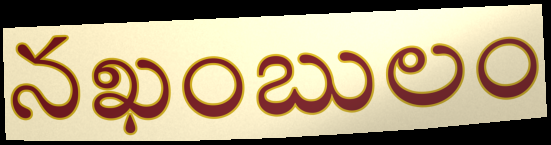
నఖంబులం